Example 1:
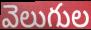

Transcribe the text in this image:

వెలుగుల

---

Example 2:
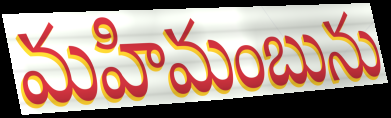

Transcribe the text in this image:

మహిమంబును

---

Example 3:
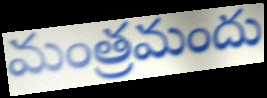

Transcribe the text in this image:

మంత్రమందు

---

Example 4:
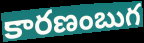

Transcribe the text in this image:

కారణంబుగ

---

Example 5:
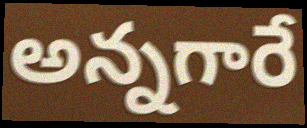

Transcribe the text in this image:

అన్నగారే